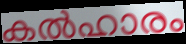
കൽഹാരം